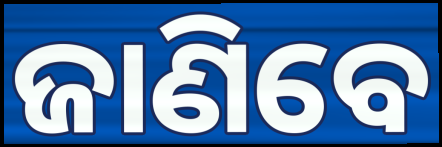
ଜାଣିବେ